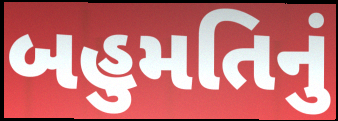
બહુમતિનું